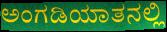
ಅಂಗಡಿಯಾತನಲ್ಲಿ